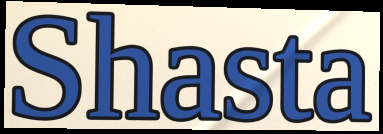
Shasta